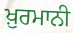
ਖ਼ੁਰਮਾਨੀ